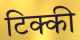
टिक्की